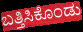
ಬತ್ತಿಸಿಕೊಂಡು